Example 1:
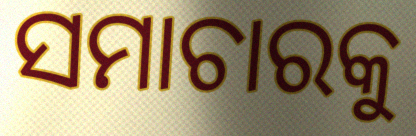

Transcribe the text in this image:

ସମାଚାରକୁ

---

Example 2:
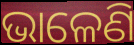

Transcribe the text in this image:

ଭାଳେଣି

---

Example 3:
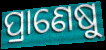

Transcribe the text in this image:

ପ୍ରାଣେଷୁ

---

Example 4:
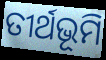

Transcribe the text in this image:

ତୀର୍ଥଭୂମି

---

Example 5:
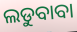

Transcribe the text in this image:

ଲଡୁବାବା